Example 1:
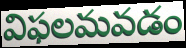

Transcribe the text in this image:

విఫలమవడం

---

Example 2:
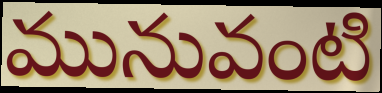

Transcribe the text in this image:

మునువంటి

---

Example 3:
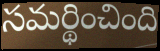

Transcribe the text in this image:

సమర్థించింది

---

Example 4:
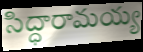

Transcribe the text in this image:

సిద్ధారామయ్య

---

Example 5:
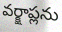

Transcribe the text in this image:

వర్క్షాప్లను